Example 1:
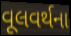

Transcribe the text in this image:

વૂલવર્થના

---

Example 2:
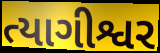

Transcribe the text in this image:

ત્યાગીશ્વર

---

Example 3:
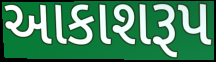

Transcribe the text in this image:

આકાશરૂપ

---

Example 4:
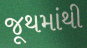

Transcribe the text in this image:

જૂથમાંથી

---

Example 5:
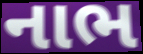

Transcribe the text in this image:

નાભ